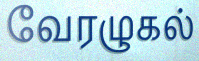
வேரழுகல்